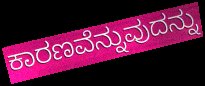
ಕಾರಣವೆನ್ನುವುದನ್ನು